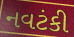
નવટંકી